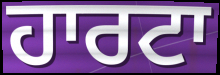
ਹਾਰਟਾ